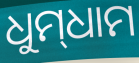
ଧୁମ୍‌ଧାମ